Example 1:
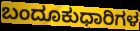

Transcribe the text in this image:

ಬಂದೂಕುಧಾರಿಗಳ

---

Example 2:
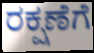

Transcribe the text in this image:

ರಕ್ಷಣೆಗೆ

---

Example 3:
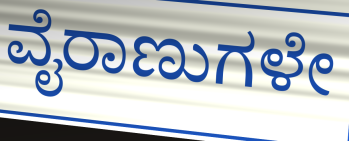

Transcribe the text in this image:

ವೈರಾಣುಗಳೇ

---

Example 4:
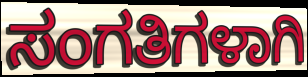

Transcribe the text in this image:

ಸಂಗತಿಗಳಾಗಿ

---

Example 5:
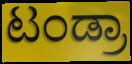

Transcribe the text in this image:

ಟಂಡ್ರಾ